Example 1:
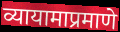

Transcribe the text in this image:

व्यायामाप्रमाणे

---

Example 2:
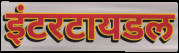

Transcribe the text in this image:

इंटरटायडल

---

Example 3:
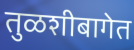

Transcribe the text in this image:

तुळशीबागेत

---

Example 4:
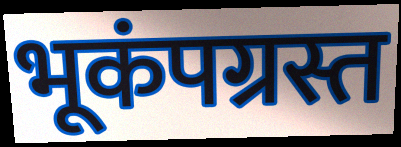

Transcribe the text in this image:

भूकंपग्रस्त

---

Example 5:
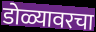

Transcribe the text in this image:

डोळ्यावरचा